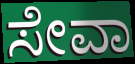
ಸೇವಾ